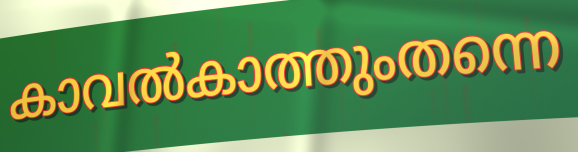
കാവൽകാത്തുംതന്നെ